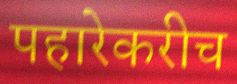
पहारेकरीच